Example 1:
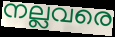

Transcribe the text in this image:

നല്ലവരെ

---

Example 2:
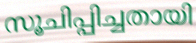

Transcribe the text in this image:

സൂചിപ്പിച്ചതായി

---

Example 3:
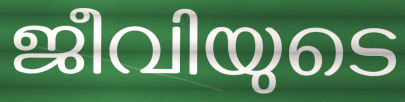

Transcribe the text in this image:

ജീവിയുടെ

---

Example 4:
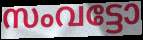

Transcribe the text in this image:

സംവട്ടോ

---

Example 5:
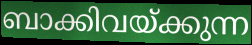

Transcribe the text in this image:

ബാക്കിവയ്ക്കുന്ന